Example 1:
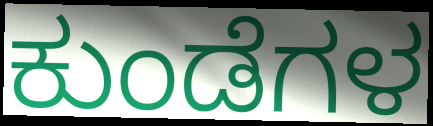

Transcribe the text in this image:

ಕುಂಡೆಗಳ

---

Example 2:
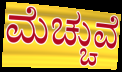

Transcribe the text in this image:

ಮೆಚ್ಚುವೆ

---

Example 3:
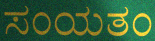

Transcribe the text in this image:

ಸಂಯತಂ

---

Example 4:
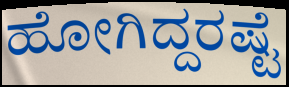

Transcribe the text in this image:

ಹೋಗಿದ್ದರಷ್ಟೆ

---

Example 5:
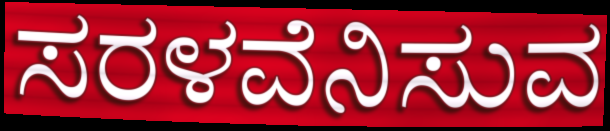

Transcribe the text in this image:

ಸರಳವೆನಿಸುವ